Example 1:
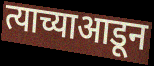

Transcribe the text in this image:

त्याच्याआडून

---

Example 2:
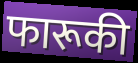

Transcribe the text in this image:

फारूकी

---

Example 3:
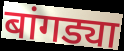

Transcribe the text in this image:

बांगड्या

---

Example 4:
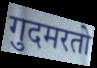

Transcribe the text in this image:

गुदमरतो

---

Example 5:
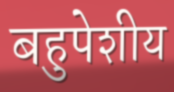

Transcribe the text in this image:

बहुपेशीय